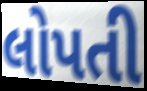
લોપતી